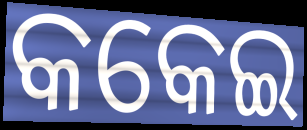
କକେଇ